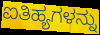
ಐತಿಹ್ಯಗಳನ್ನು